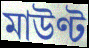
মাউণ্ট